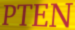
PTEN